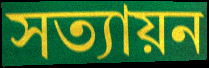
সত্যায়ন